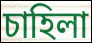
চাহিলা